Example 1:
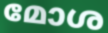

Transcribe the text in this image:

മോശ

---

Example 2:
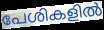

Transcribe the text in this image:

പേശികളിൽ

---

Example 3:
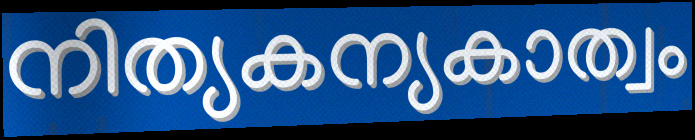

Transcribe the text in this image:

നിത്യകന്യകാത്വം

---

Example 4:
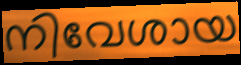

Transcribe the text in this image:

നിവേശായ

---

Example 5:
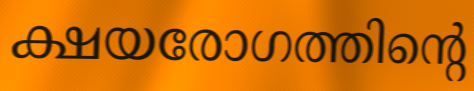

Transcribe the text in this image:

ക്ഷയരോഗത്തിന്റെ